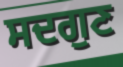
ਸਦਗੁਣ